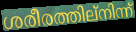
ശരീരത്തില്നിന്ന്